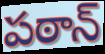
పఠాన్